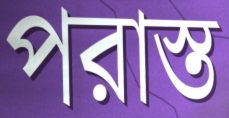
পরাস্ত